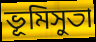
ভূমিসুতা